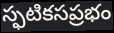
స్ఫటికసప్రభం